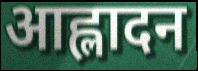
आह्लादन